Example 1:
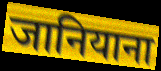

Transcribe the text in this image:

जानियाना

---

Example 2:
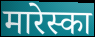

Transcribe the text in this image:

मारेस्का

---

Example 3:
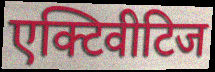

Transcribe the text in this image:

एक्टिवीटिज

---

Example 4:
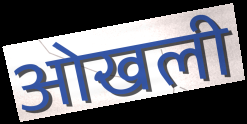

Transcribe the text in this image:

ओखली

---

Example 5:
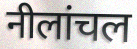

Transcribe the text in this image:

नीलांचल